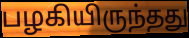
பழகியிருந்தது